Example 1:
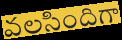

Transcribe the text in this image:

వలసిందిగా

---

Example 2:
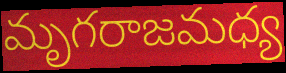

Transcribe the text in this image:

మృగరాజమధ్య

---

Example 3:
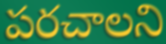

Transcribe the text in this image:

పరచాలని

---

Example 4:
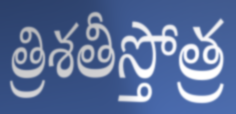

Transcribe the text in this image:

త్రిశతీస్తోత్ర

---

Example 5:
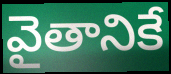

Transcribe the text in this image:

వైతానికే